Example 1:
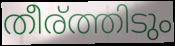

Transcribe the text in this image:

തീര്ത്തിടും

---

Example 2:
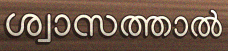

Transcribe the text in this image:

ശ്വാസത്താൽ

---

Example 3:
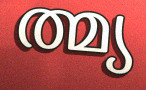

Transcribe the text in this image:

ത്മ്യ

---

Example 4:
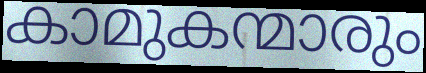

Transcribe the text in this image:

കാമുകന്മാരും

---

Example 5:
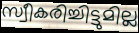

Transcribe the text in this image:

സ്വീകരിച്ചിട്ടുമില്ല